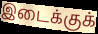
இடைக்குக்